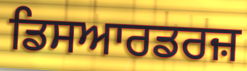
ਡਿਸਆਰਡਰਜ਼